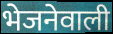
भेजनेवाली